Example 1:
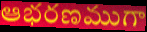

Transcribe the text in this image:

ఆభరణముగా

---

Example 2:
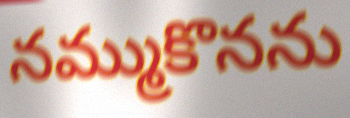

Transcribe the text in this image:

నమ్ముకొనను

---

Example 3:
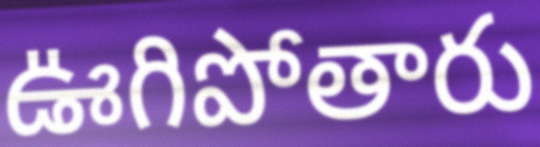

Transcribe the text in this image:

ఊగిపోతారు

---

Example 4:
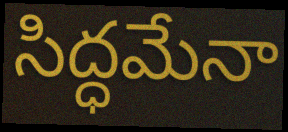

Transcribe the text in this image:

సిద్ధమేనా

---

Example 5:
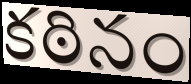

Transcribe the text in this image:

కఠినం